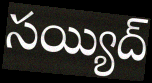
సయ్యిద్